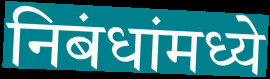
निबंधांमध्ये